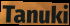
Tanuki